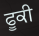
ਫੂਕੀ